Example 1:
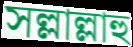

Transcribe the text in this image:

সল্লাল্লাহু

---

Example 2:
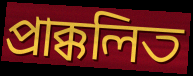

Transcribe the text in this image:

প্রাক্কলিত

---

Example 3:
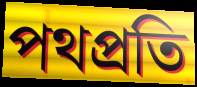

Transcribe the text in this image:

পথপ্রতি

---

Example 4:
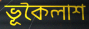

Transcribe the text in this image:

ভূকৈলাশ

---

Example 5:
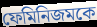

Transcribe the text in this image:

ফেমিনিজমকে